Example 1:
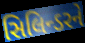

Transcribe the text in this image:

સિલિન્ડરને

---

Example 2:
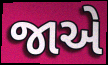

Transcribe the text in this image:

જાએ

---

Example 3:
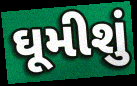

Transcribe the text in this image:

ઘૂમીશું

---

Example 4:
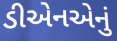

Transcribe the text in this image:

ડીએનએનું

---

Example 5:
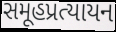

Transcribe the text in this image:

સમૂહપ્રત્યાયન